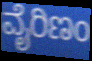
ವೈರಿಣಂ